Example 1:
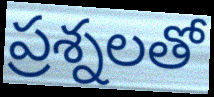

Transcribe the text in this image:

ప్రశ్నలతో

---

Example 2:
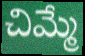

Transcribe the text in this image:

చిమ్మే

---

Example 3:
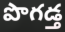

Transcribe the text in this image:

పొగడ్త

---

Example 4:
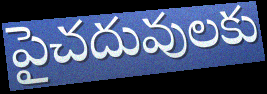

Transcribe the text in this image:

పైచదువులకు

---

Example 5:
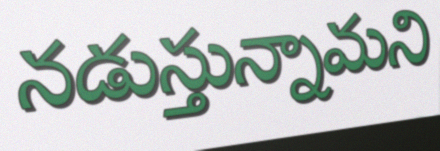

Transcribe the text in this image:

నడుస్తున్నామని